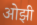
ओझी